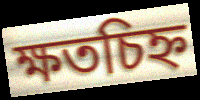
ক্ষতচিহ্ন